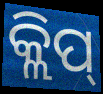
କ୍ଲିପ୍